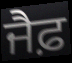
ਜੈਫ਼